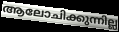
ആലോചിക്കുന്നില്ല